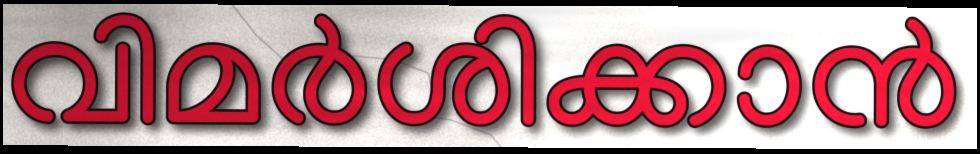
വിമർശിക്കാൻ